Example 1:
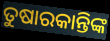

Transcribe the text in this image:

ତୁଷାରକାନ୍ତିଙ୍କ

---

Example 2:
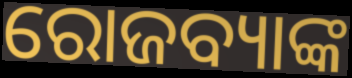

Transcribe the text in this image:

ରୋଜବ୍ୟାଙ୍କ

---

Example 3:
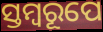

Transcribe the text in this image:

ସ୍ତମ୍ବରୂପେ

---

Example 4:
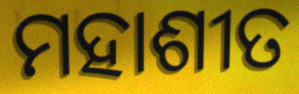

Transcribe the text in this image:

ମହାଶୀତ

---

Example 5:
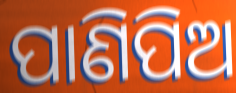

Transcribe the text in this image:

ପାଣିପିଅ